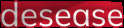
desease